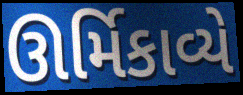
ઊર્મિકાવ્યે